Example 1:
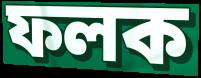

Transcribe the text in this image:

ফলক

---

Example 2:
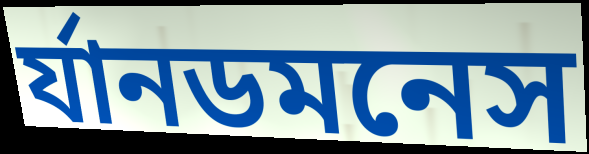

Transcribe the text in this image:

র্যানডমনেস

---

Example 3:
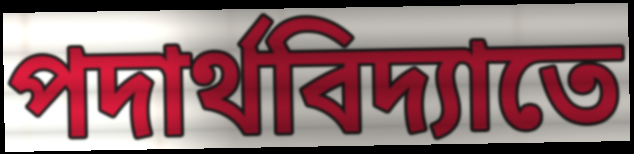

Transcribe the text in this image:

পদার্থবিদ্যাতে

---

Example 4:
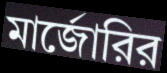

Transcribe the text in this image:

মার্জোরির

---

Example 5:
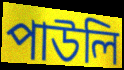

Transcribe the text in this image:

পাউলি